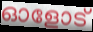
ഓളോട്